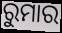
ରୁମାର